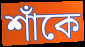
শাঁকে